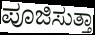
ಪೂಜಿಸುತ್ತಾ